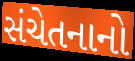
સંચેતનાનો